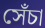
সেঁচা